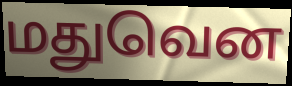
மதுவென